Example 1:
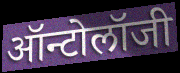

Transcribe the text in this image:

ऑन्टोलॉजी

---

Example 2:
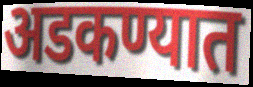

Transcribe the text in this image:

अडकण्यात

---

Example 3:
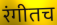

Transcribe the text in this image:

रंगीतच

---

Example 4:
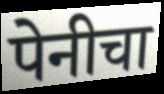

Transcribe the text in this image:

पेनीचा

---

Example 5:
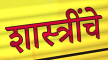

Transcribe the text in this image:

शास्त्रींचे